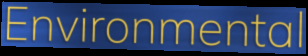
Environmental